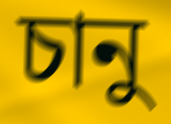
চানু